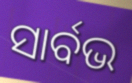
ସାର୍ବଭ